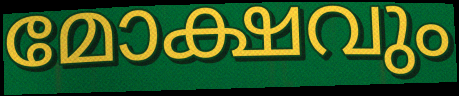
മോക്ഷവും